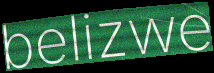
belizwe